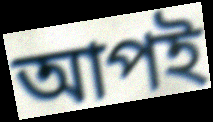
আপই